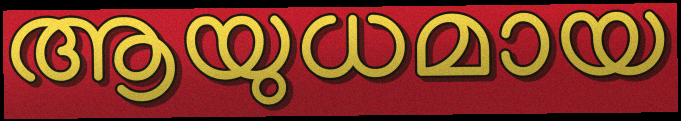
ആയുധമായ